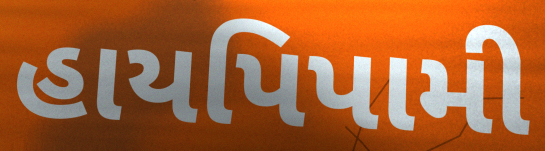
હાયપિપામી